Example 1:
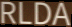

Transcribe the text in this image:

RLDA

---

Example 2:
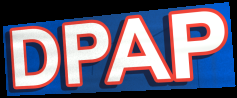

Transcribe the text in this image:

DPAP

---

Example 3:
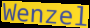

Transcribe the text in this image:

Wenzel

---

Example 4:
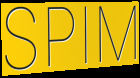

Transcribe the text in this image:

SPIM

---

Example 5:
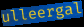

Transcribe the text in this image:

ulleergal